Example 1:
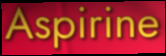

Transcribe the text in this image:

Aspirine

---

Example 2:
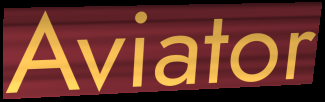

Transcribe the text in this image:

Aviator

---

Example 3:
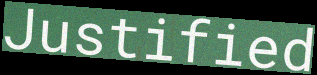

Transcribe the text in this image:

Justified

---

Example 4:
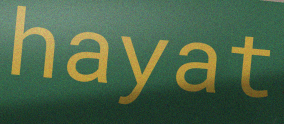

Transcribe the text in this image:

hayat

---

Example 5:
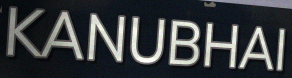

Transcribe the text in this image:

KANUBHAI